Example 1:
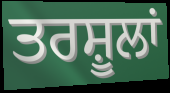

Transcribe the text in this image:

ਤਰਸ਼ੂਲਾਂ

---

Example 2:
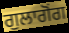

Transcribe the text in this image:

ਗੁਲਾਗੋਂਗ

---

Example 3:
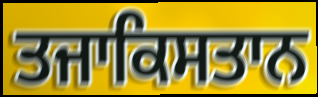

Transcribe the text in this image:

ਤਜਾਕਿਸਤਾਨ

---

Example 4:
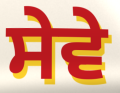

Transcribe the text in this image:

ਸੇਵੇ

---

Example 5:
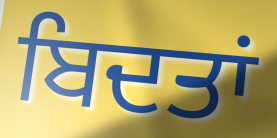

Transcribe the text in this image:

ਬਿਦਤਾਂ